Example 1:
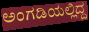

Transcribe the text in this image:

ಅಂಗಡಿಯಲ್ಲಿದ್ದ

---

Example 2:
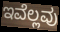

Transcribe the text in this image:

ಇವೆಲ್ಲವು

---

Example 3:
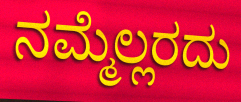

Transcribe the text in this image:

ನಮ್ಮೆಲ್ಲರದು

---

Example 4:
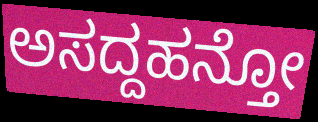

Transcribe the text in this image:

ಅಸದ್ದಹನ್ತೋ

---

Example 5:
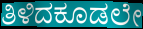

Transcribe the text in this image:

ತಿಳಿದಕೂಡಲೇ